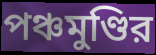
পঞ্চমুণ্ডির